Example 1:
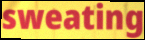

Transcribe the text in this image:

sweating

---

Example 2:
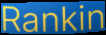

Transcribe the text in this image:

Rankin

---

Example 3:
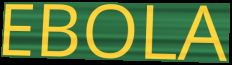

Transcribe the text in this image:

EBOLA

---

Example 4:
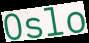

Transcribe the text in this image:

Oslo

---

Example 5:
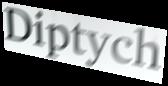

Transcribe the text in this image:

Diptych